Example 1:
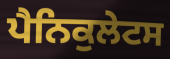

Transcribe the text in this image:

ਪੈਨਿਕੁਲੇਟਸ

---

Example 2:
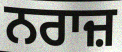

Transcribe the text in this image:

ਨਰਾਜ਼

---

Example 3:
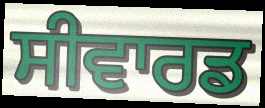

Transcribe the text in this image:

ਸੀਵਾਰਡ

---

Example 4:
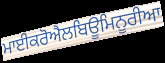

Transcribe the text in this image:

ਮਾਈਕਰੋਐਲਬਿਊਮਿਨੂਰੀਆ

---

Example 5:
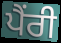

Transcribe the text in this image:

ਪੈਂਰੀ